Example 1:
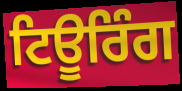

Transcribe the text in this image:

ਟਿਊਰਿੰਗ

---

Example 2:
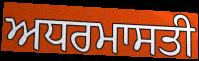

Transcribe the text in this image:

ਅਧਰਮਾਸਤੀ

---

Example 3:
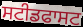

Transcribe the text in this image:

ਸਟੀਡਫਾਸਟ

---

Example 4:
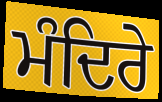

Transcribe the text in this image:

ਮੰਦਿਰੇ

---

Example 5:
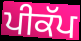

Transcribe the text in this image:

ਪੀਕੱਪ